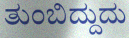
ತುಂಬಿದ್ದುದು